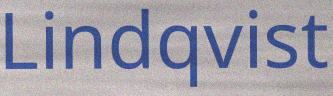
Lindqvist